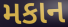
મકાન